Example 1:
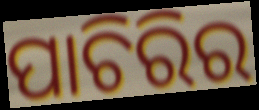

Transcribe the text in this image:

ପାଚିରିର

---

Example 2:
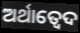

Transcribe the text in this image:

ଅର୍ଥାତ୍ବେଦ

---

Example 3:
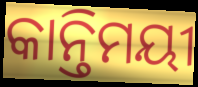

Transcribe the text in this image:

କାନ୍ତିମୟୀ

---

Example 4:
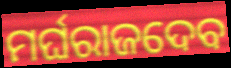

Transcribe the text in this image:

ମର୍ଘରାଜଦେବ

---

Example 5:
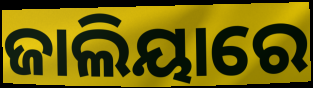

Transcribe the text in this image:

ଜାଲିୟାରେ